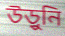
উড়ুনি